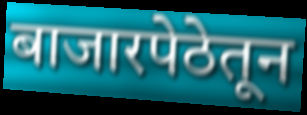
बाजारपेठेतून